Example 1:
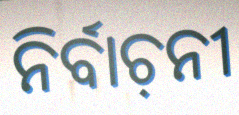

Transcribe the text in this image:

ନିର୍ବାଚ଼ନୀ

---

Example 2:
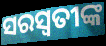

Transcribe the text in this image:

ସରସ୍ବତୀଙ୍କ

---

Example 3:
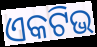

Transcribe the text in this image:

ଏକଟିଭ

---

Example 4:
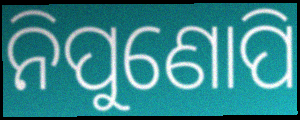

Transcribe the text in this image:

ନିପୁଣୋପି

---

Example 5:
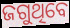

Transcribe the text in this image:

ଜଗୁଥିବେ